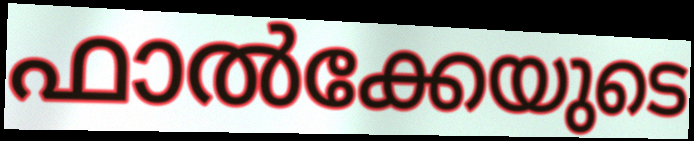
ഫാൽക്കേയുടെ